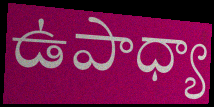
ఉపాధ్యా